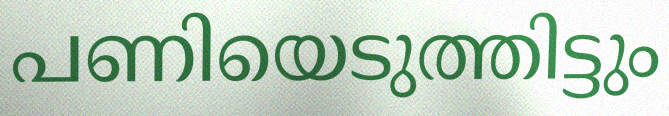
പണിയെടുത്തിട്ടും